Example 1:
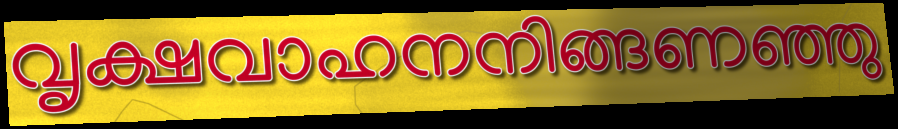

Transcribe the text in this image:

വൃക്ഷവാഹനനിങ്ങണഞ്ഞു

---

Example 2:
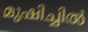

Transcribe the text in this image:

മുഷിച്ചിൽ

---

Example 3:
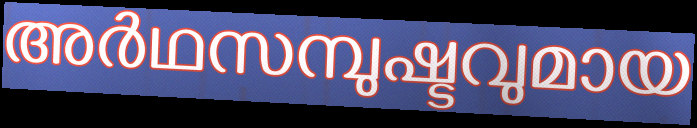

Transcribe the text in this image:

അർഥസമ്പുഷ്ടവുമായ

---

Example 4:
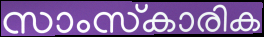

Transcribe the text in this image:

സാംസ്‌കാരിക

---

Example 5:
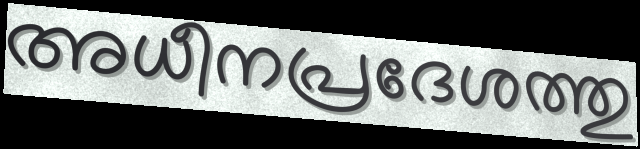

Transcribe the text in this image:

അധീനപ്രദേശത്തു